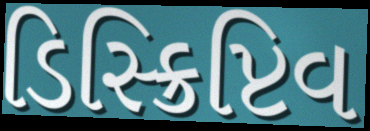
ડિસ્ક્રિપ્ટિવ